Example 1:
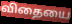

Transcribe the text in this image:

விதையை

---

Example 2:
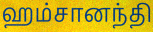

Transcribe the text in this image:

ஹம்சானந்தி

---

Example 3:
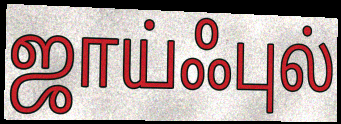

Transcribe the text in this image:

ஜாய்ஃபுல்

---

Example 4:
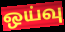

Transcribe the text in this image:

ஒய்வு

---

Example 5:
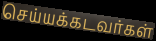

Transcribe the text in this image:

செய்யக்கடவர்கள்